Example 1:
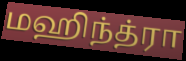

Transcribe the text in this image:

மஹிந்த்ரா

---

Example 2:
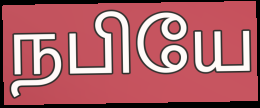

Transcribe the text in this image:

நபியே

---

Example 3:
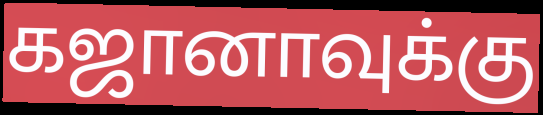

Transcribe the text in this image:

கஜானாவுக்கு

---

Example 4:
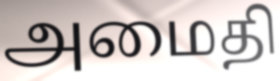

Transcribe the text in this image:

அமைதி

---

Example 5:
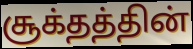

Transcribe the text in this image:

சூக்தத்தின்